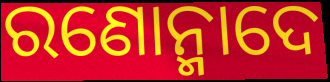
ରଣୋନ୍ମାଦେ